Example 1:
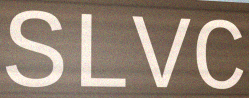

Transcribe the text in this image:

SLVC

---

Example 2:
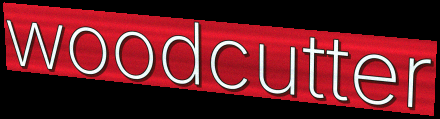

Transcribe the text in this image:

woodcutter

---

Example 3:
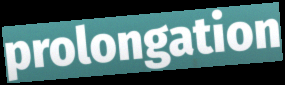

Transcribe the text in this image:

prolongation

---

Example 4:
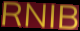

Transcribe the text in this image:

RNIB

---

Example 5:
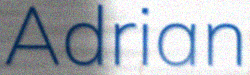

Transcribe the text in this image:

Adrian